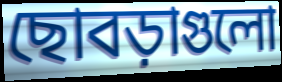
ছোবড়াগুলো